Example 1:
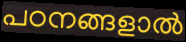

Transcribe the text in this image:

പഠനങ്ങളാൽ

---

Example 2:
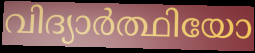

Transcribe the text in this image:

വിദ്യാർത്ഥിയോ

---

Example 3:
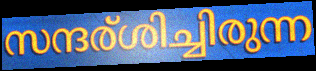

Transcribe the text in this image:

സന്ദര്ശിച്ചിരുന്ന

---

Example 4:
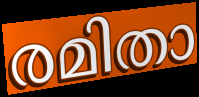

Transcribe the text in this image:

രമിതാ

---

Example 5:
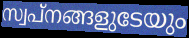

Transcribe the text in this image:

സ്വപ്നങ്ങളുടേയും